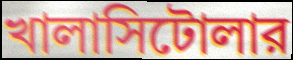
খালাসিটোলার